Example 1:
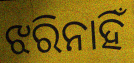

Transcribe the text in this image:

ଝରିନାହିଁ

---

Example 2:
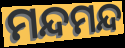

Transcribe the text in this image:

ମନ୍ଦମନ୍ଦ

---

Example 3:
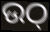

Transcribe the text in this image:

ଉଠ୍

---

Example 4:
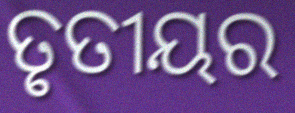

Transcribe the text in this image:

ତୃତୀୟର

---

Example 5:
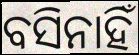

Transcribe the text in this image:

ବସିନାହିଁ